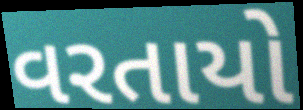
વરતાયો